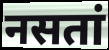
नसतां